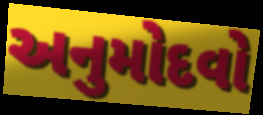
અનુમોદવો